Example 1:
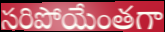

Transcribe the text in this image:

సరిపోయేంతగా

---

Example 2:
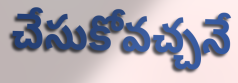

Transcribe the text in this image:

చేసుకోవచ్చనే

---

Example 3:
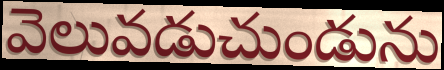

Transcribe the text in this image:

వెలువడుచుండును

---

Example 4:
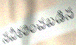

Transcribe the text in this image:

నవీకరించబడిన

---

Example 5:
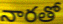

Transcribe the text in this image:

నారతో